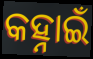
କହ୍ନାଇଁ